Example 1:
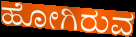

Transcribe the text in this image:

ಹೋಗಿರುವ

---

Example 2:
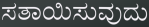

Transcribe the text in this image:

ಸತಾಯಿಸುವುದು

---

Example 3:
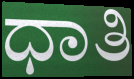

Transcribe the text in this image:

ಧಾತಿ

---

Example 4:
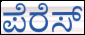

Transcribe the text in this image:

ಪೆರೆಸ್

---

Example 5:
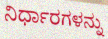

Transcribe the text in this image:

ನಿರ್ಧಾರಗಳನ್ನು